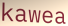
kawea